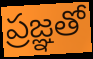
ప్రజ్ఞతో